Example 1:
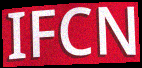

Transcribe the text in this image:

IFCN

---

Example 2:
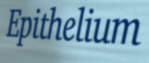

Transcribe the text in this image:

Epithelium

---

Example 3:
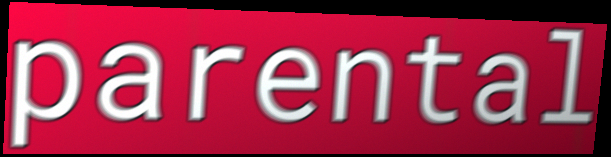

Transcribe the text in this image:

parental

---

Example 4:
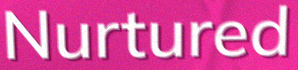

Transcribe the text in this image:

Nurtured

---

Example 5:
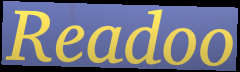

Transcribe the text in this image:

Readoo